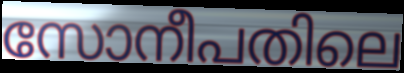
സോനീപതിലെ